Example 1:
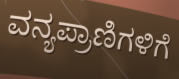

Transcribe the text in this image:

ವನ್ಯಪ್ರಾಣಿಗಳಿಗೆ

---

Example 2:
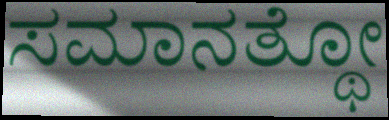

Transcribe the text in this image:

ಸಮಾನತ್ಥೋ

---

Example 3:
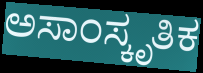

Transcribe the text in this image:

ಅಸಾಂಸ್ಕೃತಿಕ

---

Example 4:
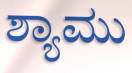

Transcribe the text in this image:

ಶ್ಯಾಮು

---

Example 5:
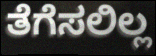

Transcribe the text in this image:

ತೆಗೆಸಲಿಲ್ಲ